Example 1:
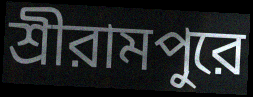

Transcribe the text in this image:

শ্রীরামপুরে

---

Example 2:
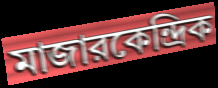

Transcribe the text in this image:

মাজারকেন্দ্রিক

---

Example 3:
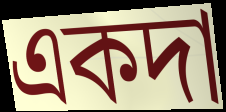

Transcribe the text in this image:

একদা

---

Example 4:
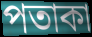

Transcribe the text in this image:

পতাকা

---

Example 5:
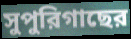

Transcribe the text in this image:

সুপুরিগাছের